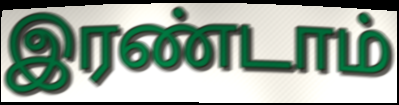
இரண்டாம்